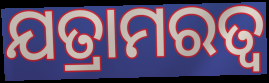
ଯତ୍ରାମରତ୍ଵ